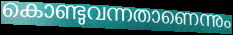
കൊണ്ടുവന്നതാണെന്നും